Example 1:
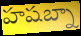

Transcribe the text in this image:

హషబ్నా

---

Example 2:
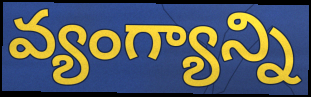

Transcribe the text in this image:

వ్యంగ్యాన్ని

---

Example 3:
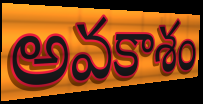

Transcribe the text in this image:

అవకాశం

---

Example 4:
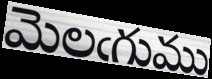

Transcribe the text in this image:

మెలఁగుము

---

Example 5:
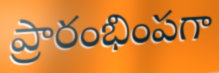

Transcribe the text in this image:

ప్రారంభింపగా